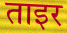
ताइर